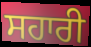
ਸਹਾਰੀ